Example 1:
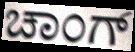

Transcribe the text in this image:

ಚಾಂಗ್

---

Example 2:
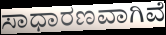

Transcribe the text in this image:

ಸಾಧಾರಣವಾಗಿವೆ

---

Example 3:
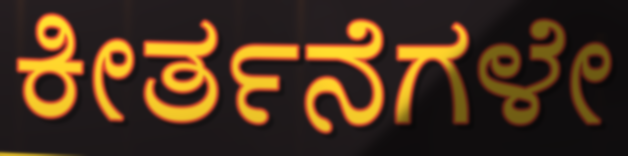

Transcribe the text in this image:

ಕೀರ್ತನೆಗಳೇ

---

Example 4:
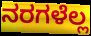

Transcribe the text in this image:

ನರಗಳೆಲ್ಲ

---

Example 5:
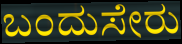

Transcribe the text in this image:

ಬಂದುಸೇರು